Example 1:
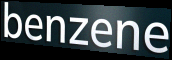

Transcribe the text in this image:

benzene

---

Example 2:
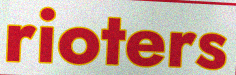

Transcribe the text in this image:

rioters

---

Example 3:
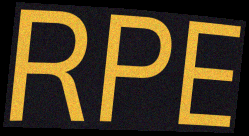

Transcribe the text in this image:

RPE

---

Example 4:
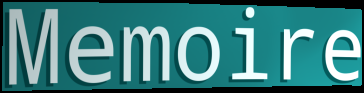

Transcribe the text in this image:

Memoire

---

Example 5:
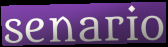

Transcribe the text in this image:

senario